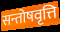
सन्तोषवृत्ति